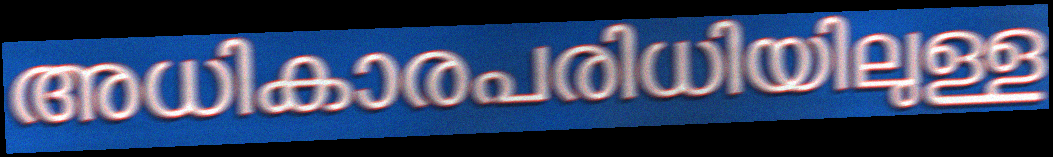
അധികാരപരിധിയിലുള്ള